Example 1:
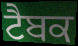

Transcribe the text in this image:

ਟੈਬਕ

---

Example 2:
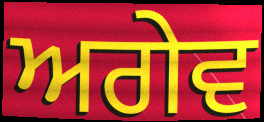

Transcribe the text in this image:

ਅਗੇਵ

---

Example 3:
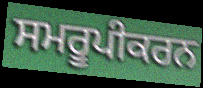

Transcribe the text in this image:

ਸਮਰੂਪੀਕਰਨ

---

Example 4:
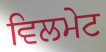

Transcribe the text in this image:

ਵਿਲਮੇਟ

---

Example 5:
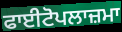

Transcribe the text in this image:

ਫਾਈਟੋਪਲਾਜ਼ਮਾ